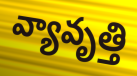
వ్యావృత్తి